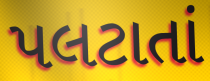
પલટાતાં